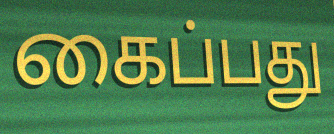
கைப்பது